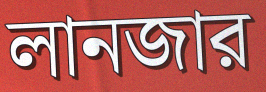
লানজার